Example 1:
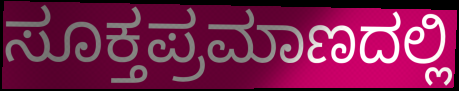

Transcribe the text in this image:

ಸೂಕ್ತಪ್ರಮಾಣದಲ್ಲಿ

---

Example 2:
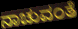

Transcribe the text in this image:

ನಾಚುವಂತೆ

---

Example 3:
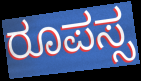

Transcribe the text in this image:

ರೂಪಸ್ಸ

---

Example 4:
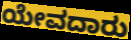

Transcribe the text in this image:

ಯೇವದಾರು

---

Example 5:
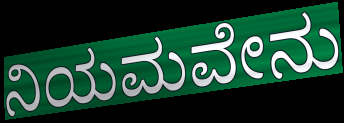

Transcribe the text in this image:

ನಿಯಮವೇನು